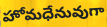
హోమధేనువుగా